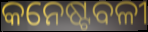
କନେଷ୍ଟବଳୀ